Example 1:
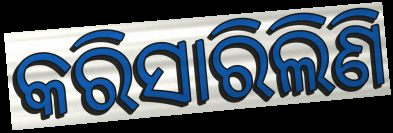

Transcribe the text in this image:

କରିସାରିଲିଣି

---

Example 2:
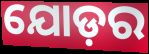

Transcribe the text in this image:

ଯୋଡ଼ର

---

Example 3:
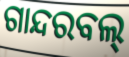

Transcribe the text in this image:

ଗାନ୍ଦରବଲ୍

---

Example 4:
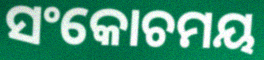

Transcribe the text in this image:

ସଂକୋଚମୟ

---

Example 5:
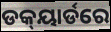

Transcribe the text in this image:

ଡକ୍‍ୟାର୍ଡରେ